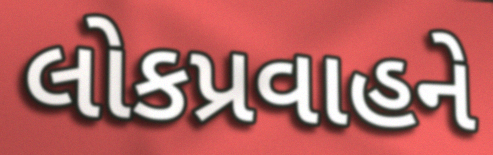
લોકપ્રવાહને